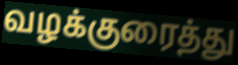
வழக்குரைத்து